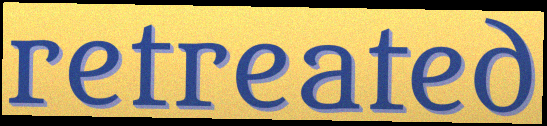
retreated